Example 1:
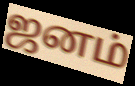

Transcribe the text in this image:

ஜனம்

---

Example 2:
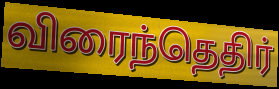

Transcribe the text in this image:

விரைந்தெதிர்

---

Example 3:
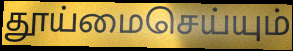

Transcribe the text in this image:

தூய்மைசெய்யும்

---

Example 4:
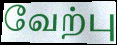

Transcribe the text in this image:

வேற்பு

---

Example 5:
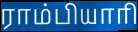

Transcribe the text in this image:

ராம்பியாரி